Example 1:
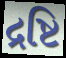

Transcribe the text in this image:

દ્રષ્ટિ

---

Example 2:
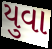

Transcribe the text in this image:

યુવા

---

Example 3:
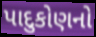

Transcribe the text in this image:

પાદુકોણનો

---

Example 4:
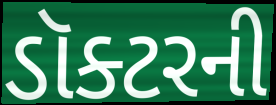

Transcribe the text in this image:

ડૉક્ટરની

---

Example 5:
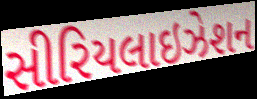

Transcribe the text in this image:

સીરિયલાઇઝેશન